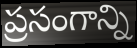
ప్రసంగాన్ని